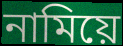
নামিয়ে